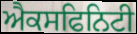
ਐਕਸਫਿਨਿਟੀ